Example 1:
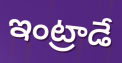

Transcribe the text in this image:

ఇంట్రాడే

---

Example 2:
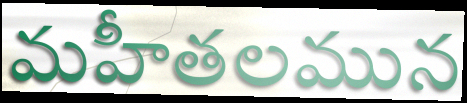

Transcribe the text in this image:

మహీతలమున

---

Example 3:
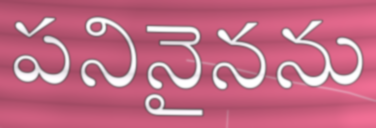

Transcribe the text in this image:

పనినైనను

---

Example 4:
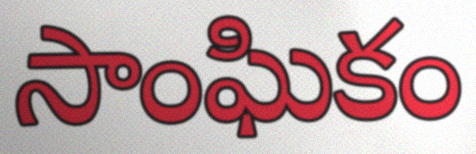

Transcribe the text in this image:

సాంఘికం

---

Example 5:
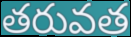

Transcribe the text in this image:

తరువత